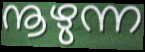
നൂഴുന്ന